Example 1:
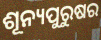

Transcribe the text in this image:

ଶୂନ୍ୟପୁରୁଷର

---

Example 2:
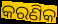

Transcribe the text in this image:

କରଣିକ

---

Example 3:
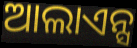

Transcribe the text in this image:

ଆଲାଏନ୍ସ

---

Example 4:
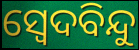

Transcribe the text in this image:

ସ୍ୱେଦବିନ୍ଦୁ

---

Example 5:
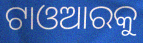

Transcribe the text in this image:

ଟାଓଆରକୁ